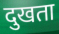
दुखता